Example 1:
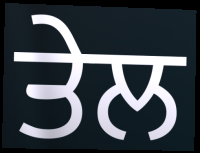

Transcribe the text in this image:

ਤੇਲ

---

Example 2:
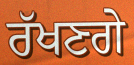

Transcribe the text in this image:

ਰੱਖਣਗੇ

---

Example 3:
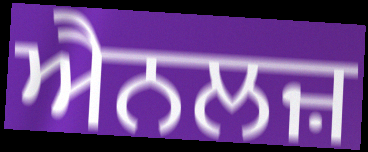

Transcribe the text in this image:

ਐਨਲਜ਼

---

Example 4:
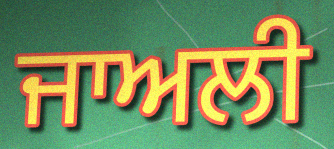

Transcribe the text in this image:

ਜਾਅਲੀ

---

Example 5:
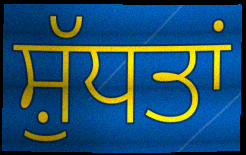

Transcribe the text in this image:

ਸ਼ੁੱਧਤਾਂ